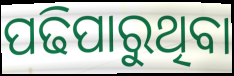
ପଢିପାରୁଥିବା